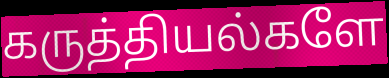
கருத்தியல்களே